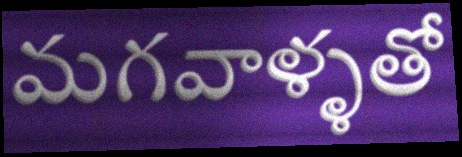
మగవాళ్ళతో